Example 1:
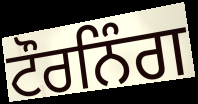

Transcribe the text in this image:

ਟੌਰਨਿੰਗ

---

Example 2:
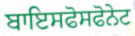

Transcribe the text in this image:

ਬਾਇਸਫੋਸਫੋਨੇਟ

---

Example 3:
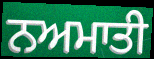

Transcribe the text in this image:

ਨਅਮਾਤੀ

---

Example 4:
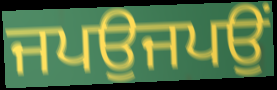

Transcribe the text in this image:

ਜਪਉਜਪਉਂ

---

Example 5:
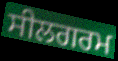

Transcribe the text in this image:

ਸੀਲਗਰਮ